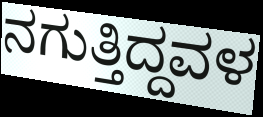
ನಗುತ್ತಿದ್ದವಳ